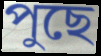
পুছে